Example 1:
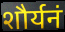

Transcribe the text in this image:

शौर्यनं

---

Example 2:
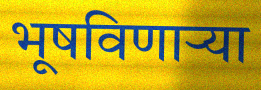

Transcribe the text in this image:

भूषविणाऱ्या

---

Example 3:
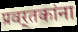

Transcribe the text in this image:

प्रवर्तकांना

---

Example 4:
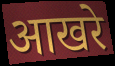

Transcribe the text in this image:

आखरे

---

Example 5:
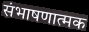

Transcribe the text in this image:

संभाषणात्मक